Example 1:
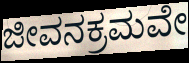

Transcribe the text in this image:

ಜೀವನಕ್ರಮವೇ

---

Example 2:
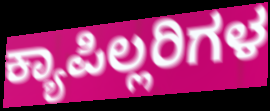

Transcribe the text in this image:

ಕ್ಯಾಪಿಲ್ಲರಿಗಳ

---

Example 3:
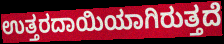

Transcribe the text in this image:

ಉತ್ತರದಾಯಿಯಾಗಿರುತ್ತದೆ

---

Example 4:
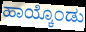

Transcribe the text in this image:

ಹಾಯ್ಕೊಂಡು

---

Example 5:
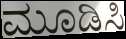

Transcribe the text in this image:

ಮೂಡಿಸಿ